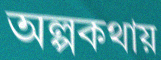
অল্পকথায়